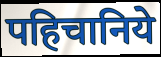
पहिचानिये